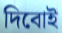
দিবোই